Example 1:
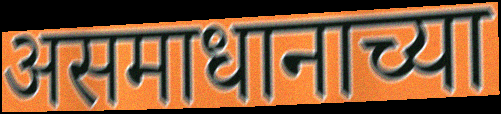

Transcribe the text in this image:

असमाधानाच्या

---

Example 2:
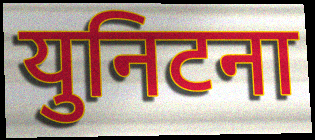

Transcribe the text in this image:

युनिटना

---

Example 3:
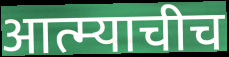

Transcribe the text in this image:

आत्म्याचीच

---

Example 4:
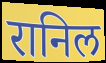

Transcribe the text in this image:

रानिल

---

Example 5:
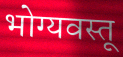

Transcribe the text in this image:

भोग्यवस्तू